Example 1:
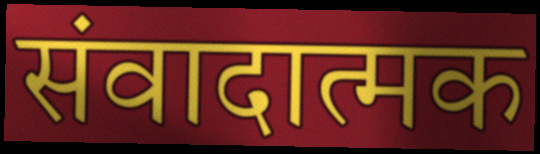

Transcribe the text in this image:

संवादात्मक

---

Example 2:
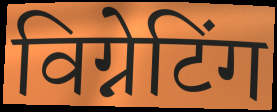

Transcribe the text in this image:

विग्नेटिंग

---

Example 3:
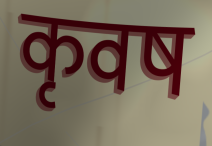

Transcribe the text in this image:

कृवष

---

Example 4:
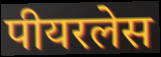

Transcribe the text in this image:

पीयरलेस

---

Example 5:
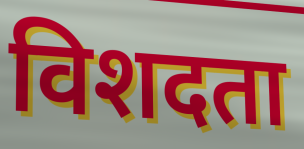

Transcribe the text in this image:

विशदता